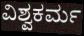
ವಿಶ್ವಕರ್ಮ